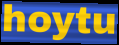
hoytu